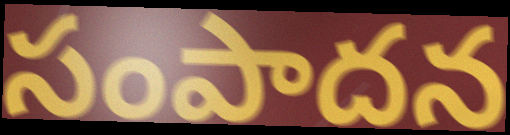
సంపాదన